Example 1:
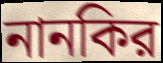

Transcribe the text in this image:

নানকির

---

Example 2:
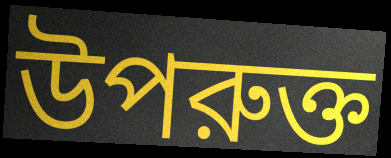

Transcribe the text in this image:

উপরুক্ত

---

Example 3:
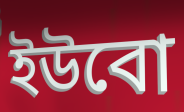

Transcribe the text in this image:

ইউবো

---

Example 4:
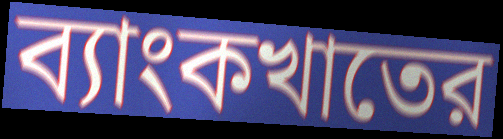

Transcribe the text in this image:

ব্যাংকখাতের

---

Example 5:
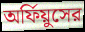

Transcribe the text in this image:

অর্ফিয়ুসের